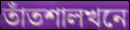
তাঁতশালখনে